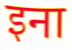
इना